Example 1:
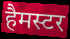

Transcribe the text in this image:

हैमस्टर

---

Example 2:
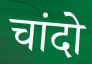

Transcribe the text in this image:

चांदो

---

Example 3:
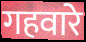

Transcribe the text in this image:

गहवारे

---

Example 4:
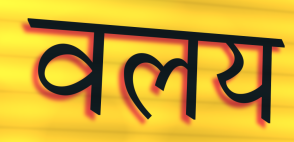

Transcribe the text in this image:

वलय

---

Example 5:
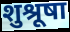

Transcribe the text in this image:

शुश्रूषा